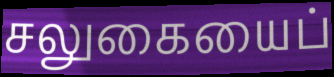
சலுகையைப்